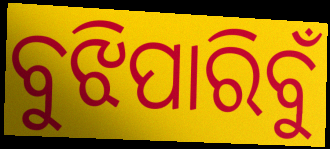
ବୁଝିପାରିବୁଁ